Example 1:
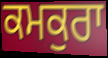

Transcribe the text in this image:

ਕਮਕੁਰਾ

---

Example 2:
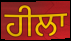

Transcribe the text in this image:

ਹੀਲਾ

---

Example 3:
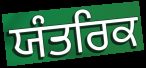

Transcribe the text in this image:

ਯੰਤਰਿਕ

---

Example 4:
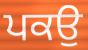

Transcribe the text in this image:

ਪਕਉ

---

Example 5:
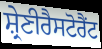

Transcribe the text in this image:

ਸ਼੍ਰੇਣੀਰੈਸਟੋਰੈਂਟ